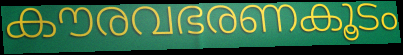
കൗരവഭരണകൂടം